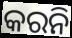
କରନି